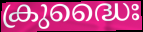
ക്രുദ്ധൈഃ